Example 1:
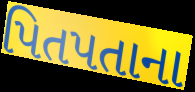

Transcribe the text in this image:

પિતપતાના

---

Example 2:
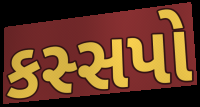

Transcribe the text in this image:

કસ્સપો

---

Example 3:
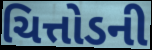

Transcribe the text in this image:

ચિત્તોડની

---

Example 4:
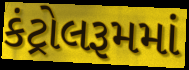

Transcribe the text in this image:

કંટ્રોલરૂમમાં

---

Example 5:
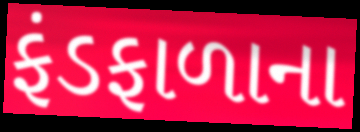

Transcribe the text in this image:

ફંડફાળાના